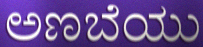
ಅಣಬೆಯು